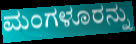
ಮಂಗಳೂರನ್ನು